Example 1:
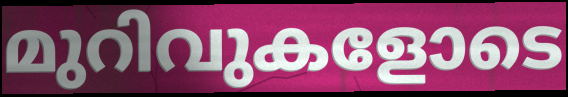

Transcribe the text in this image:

മുറിവുകളോടെ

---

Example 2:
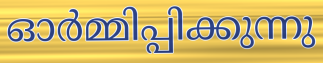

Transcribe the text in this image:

ഓർമ്മിപ്പിക്കുന്നു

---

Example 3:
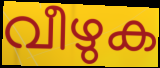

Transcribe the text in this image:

വീഴുക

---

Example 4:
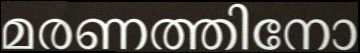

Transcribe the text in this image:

മരണത്തിനോ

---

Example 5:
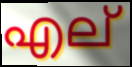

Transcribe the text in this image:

എല്